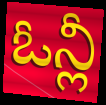
ఓన్లీ